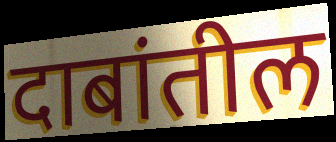
दाबांतील